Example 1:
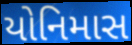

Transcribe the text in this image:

યોનિમાસ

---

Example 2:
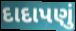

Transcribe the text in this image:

દાદાપણું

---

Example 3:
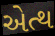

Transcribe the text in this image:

એત્થ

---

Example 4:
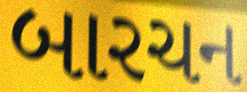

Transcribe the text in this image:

બારચન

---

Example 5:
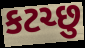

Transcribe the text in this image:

કટચ્છુ